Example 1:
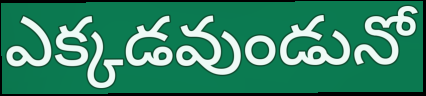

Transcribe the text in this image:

ఎక్కడవుండునో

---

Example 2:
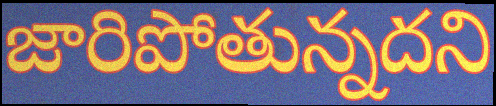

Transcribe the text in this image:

జారిపోతున్నదని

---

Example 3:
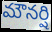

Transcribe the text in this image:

మౌనర్షి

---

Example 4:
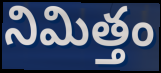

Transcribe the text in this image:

నిమిత్తం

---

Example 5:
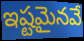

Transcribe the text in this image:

ఇష్టమైనవే